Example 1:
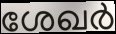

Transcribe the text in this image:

ശേഖർ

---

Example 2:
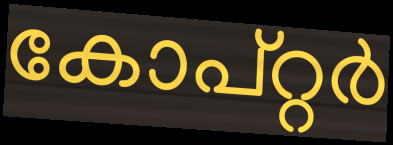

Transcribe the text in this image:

കോപ്റ്റർ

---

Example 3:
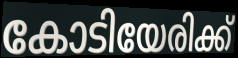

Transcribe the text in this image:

കോടിയേരിക്ക്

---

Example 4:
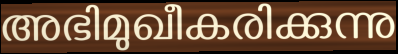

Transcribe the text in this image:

അഭിമുഖീകരിക്കുന്നു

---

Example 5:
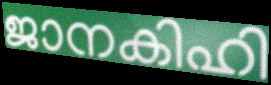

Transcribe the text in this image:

ജാനകിഹി